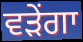
ਵੜੇਂਗਾ